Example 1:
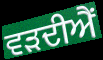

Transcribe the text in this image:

ਵੜਦੀਐਂ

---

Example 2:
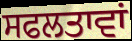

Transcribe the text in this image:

ਸਫਲਤਾਵਾਂ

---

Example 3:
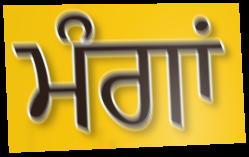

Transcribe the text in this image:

ਮੰਗਾਂ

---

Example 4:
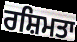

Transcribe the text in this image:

ਰਸ਼ਿਮਤਾ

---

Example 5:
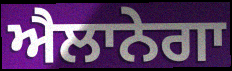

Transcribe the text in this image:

ਐਲਾਨੇਗਾ